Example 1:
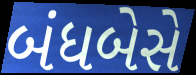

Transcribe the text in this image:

બંધબેસે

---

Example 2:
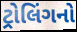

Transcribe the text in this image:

ટ્રોલિંગનો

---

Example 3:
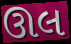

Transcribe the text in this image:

ઊલ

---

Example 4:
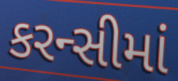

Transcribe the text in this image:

કરન્સીમાં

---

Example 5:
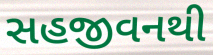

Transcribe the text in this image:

સહજીવનથી